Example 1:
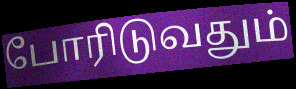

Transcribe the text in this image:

போரிடுவதும்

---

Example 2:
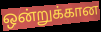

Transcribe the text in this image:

ஒன்றுக்கான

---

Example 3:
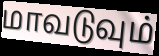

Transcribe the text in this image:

மாவடுவும்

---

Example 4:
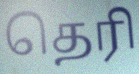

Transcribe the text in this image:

தெரி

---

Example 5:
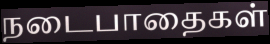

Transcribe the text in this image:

நடைபாதைகள்